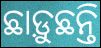
ଛାଡ଼ୁଛନ୍ତି